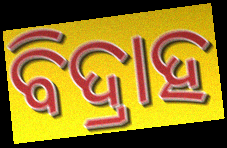
ବିଦ୍ରାହ